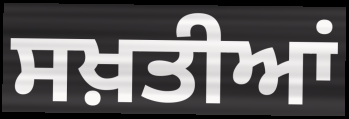
ਸਖ਼ਤੀਆਂ